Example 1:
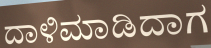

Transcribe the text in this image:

ದಾಳಿಮಾಡಿದಾಗ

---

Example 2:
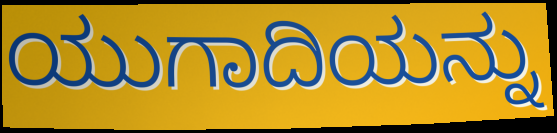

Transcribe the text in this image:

ಯುಗಾದಿಯನ್ನು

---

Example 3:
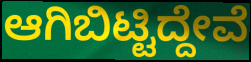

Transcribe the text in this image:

ಆಗಿಬಿಟ್ಟಿದ್ದೇವೆ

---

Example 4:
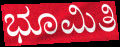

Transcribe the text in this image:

ಭೂಮಿತಿ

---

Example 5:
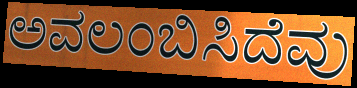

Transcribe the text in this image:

ಅವಲಂಬಿಸಿದೆವು